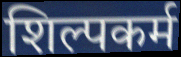
शिल्पकर्म